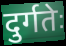
दुर्गतेः